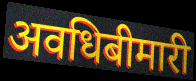
अवधिबीमारी